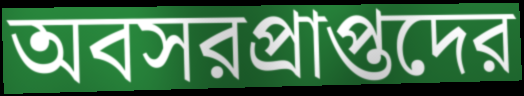
অবসরপ্রাপ্তদের